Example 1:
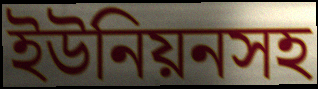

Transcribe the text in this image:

ইউনিয়নসহ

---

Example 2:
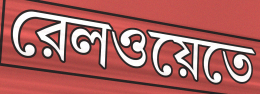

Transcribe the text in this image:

রেলওয়েতে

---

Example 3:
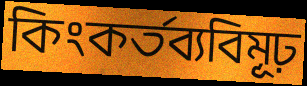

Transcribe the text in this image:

কিংকর্তব্যবিমূঢ়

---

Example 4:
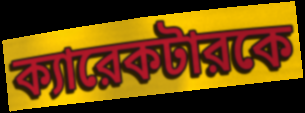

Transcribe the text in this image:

ক্যারেকটারকে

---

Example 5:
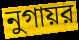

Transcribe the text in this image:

নুগায়র